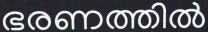
ഭരണത്തിൽ